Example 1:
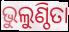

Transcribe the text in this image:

ଭୁଲୁଣ୍ଠିତା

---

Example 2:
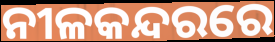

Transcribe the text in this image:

ନୀଳକନ୍ଦରରେ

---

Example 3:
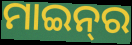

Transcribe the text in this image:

ମାଇନ୍‍ର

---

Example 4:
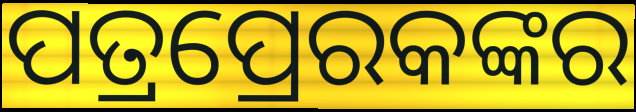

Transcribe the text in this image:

ପତ୍ରପ୍ରେରକଙ୍କର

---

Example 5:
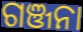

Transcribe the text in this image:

ଗଞ୍ଜନା